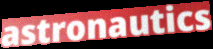
astronautics